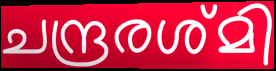
ചന്ദ്രരശ്മി